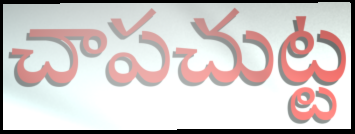
చాపచుట్ట